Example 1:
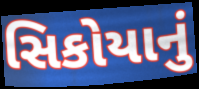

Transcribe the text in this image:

સિકોયાનું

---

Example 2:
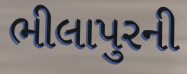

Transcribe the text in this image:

ભીલાપુરની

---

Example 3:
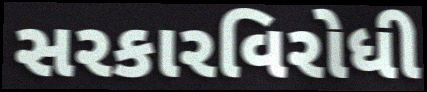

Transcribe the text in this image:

સરકારવિરોધી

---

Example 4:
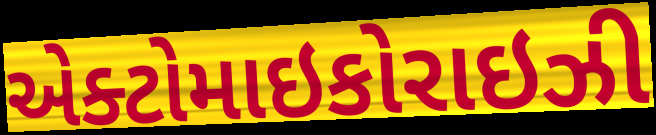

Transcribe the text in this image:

એક્ટોમાઇકોરાઇઝી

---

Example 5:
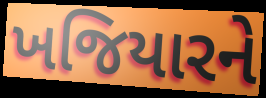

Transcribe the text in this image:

ખજિયારને